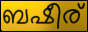
ബഷീര്